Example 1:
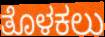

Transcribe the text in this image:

ತೊಳಕಲು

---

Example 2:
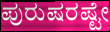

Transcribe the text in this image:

ಪುರುಷರಷ್ಟೇ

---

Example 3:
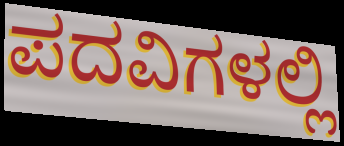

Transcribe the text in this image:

ಪದವಿಗಳಲ್ಲಿ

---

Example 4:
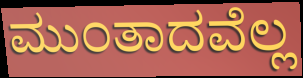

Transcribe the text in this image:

ಮುಂತಾದವೆಲ್ಲ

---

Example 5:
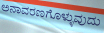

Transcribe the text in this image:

ಅನಾವರಣಗೊಳ್ಳುವುದು